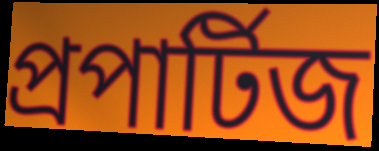
প্রপার্টিজ